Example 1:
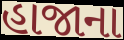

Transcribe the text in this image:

હાજાના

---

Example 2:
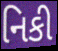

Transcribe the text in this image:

નિકી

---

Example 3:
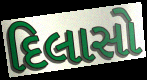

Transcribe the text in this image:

દિલાસો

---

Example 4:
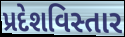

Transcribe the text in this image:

પ્રદેશવિસ્તાર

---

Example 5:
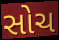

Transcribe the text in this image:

સોચ